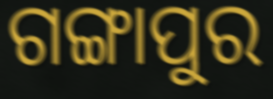
ଗଙ୍ଗାପୁର